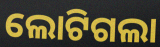
ଲୋଟିଗଲା